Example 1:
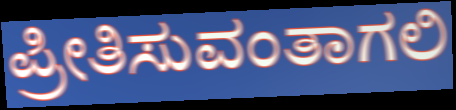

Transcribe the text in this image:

ಪ್ರೀತಿಸುವಂತಾಗಲಿ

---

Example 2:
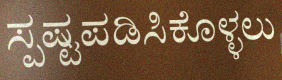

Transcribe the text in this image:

ಸ್ಪಷ್ಟಪಡಿಸಿಕೊಳ್ಳಲು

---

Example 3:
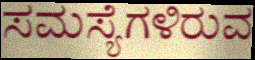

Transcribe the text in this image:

ಸಮಸ್ಯೆಗಳಿರುವ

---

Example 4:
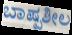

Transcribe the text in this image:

ಬಾಷ್ಪಶೀಲ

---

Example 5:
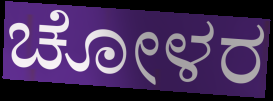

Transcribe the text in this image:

ಚೋಳರ